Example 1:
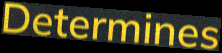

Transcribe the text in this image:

Determines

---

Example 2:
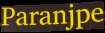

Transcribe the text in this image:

Paranjpe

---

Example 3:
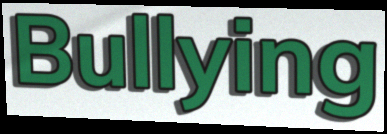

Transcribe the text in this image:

Bullying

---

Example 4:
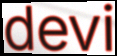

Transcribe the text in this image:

devi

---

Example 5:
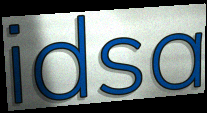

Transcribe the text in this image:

idsa